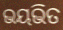
ଭୟଭିତ